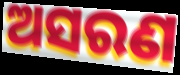
ଅସରଣ